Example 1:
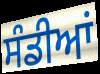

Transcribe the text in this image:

ਸੰਡੀਆਂ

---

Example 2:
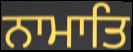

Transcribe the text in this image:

ਨਾਮਾਤਿ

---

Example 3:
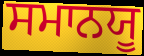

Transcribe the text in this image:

ਸਮਾਨਯੂ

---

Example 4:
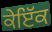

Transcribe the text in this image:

ਕੇਇੱਕ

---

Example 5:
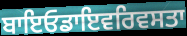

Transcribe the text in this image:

ਬਾਇਓਡਾਇਵਰਿਵਸਤਾ